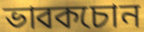
ভাবকচোন